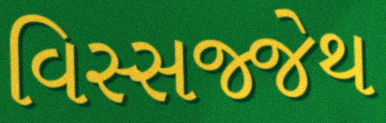
વિસ્સજ્જેથ